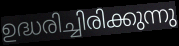
ഉദ്ധരിച്ചിരിക്കുന്നു